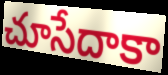
చూసేదాకా